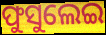
ଫୁସୁଲେଇ